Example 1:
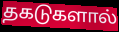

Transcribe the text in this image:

தகடுகளால்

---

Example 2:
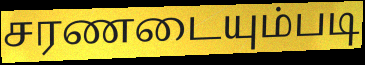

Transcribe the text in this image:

சரணடையும்படி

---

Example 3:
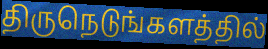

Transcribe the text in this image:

திருநெடுங்களத்தில்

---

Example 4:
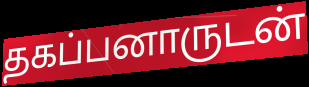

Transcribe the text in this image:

தகப்பனாருடன்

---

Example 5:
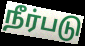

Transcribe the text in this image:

நீர்படு